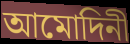
আমোদিনী